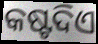
କଷ୍ଟଦିଏ